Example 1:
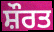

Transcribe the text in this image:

ਸ਼ੌਰਤ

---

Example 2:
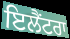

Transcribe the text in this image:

ਇਲੈਂਟਰਾ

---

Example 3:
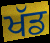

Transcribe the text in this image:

ਖੱਡ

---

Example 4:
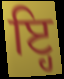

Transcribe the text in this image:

ਇ੍ਹ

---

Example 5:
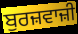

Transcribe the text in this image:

ਬੁਰਜ਼ਵਾਜ਼ੀ